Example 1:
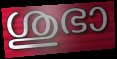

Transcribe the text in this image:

ശുഭാ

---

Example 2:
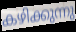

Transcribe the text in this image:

കഴിക്കുന്നു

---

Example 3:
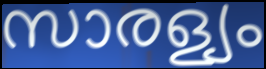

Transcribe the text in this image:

സാരള്യം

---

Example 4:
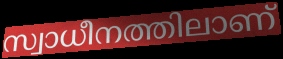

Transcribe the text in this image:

സ്വാധീനത്തിലാണ്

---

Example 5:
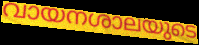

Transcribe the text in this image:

വായനശാലയുടെ